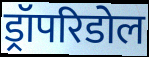
ड्रॉपरिडोल